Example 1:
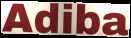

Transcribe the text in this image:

Adiba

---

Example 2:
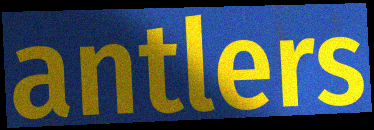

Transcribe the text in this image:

antlers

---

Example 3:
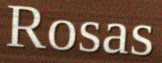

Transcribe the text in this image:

Rosas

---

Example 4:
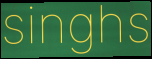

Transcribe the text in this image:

singhs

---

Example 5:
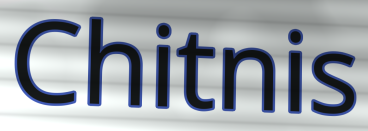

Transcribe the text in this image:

Chitnis